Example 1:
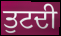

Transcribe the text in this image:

ਤੁਟਦੀ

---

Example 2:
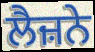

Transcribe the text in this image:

ਲੈਜ਼ਨੇ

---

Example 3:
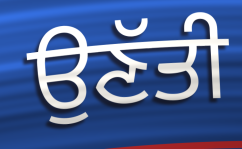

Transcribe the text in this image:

ਉਣੱਤੀ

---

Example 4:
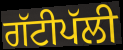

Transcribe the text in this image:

ਗੱਟੀਪੱਲੀ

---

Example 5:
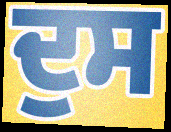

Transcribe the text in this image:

ਦੁਸ